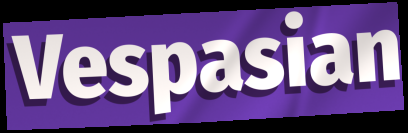
Vespasian